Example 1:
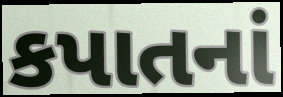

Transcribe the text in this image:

કપાતનાં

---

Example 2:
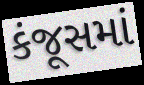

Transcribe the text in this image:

કંજૂસમાં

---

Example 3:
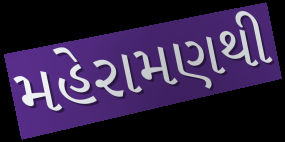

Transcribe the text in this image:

મહેરામણથી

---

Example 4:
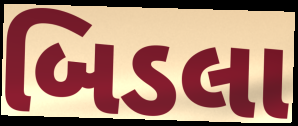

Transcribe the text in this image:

બિડલા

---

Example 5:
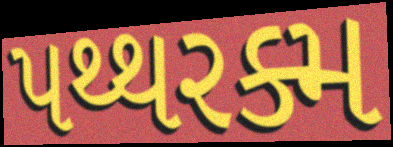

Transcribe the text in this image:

પથ્થરક્મ